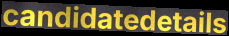
candidatedetails